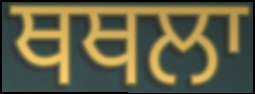
ਥਥਲਾ